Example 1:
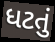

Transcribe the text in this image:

ધટતું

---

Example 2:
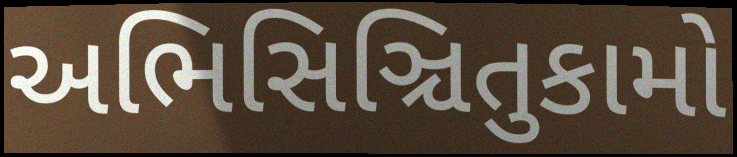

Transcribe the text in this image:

અભિસિઞ્ચિતુકામો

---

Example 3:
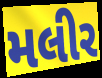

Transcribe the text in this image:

મલીર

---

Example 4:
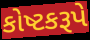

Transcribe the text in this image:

કોષ્ટકરૂપે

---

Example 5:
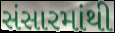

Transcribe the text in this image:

સંસારમાંથી